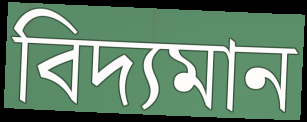
বিদ্যমান